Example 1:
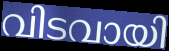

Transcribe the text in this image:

വിടവായി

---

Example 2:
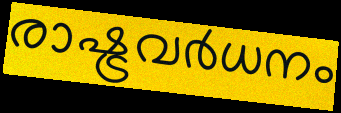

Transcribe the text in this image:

രാഷ്ട്രവർധനം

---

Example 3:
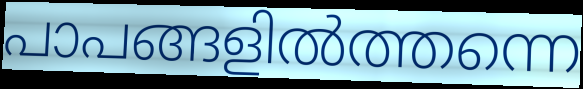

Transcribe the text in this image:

പാപങ്ങളിൽത്തന്നെ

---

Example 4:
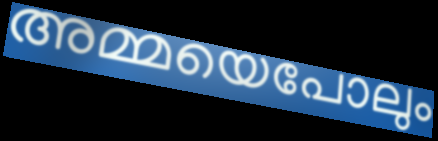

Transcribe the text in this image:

അമ്മയെപോലും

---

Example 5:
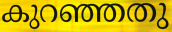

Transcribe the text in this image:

കുറഞ്ഞതു